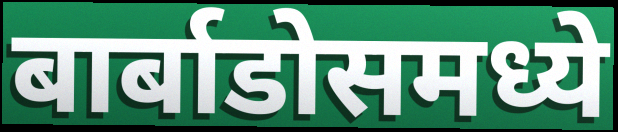
बार्बाडोसमध्ये